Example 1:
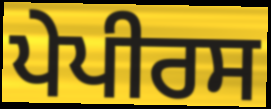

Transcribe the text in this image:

ਪੇਪੀਰਸ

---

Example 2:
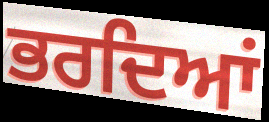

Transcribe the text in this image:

ਭਰਦਿਆਂ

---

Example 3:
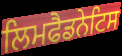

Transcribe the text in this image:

ਲਿਮਫੈਡਨੇਟਿਸ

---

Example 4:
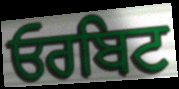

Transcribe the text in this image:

ਓਰਬਿਟ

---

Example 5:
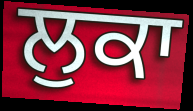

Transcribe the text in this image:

ਲੁਕਾ